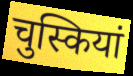
चुस्कियां